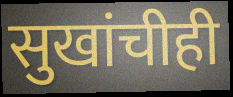
सुखांचीही